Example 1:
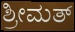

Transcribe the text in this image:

ಶ್ರೀಮತ್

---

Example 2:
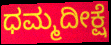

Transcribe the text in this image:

ಧಮ್ಮದೀಕ್ಷೆ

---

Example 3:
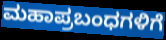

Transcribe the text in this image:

ಮಹಾಪ್ರಬಂಧಗಳಿಗೆ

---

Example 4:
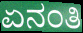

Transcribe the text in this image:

ಏನಂತಿ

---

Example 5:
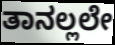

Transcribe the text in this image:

ತಾನಲ್ಲಲೇ